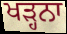
ਖੜ੍ਹਨਾ